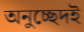
অনুচ্ছেদই